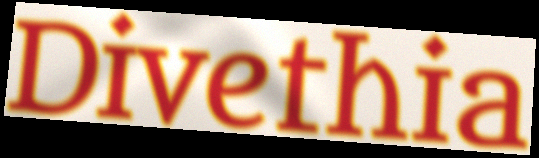
Divethia